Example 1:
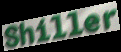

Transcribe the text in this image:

Shiller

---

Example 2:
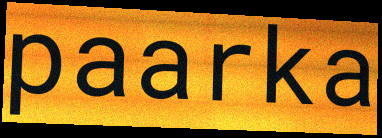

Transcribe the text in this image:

paarka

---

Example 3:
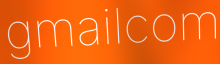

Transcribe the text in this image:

gmailcom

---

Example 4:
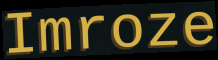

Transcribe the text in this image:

Imroze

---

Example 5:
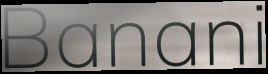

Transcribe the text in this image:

Banani